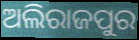
ଅଲିରାଜପୁର